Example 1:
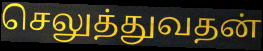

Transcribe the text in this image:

செலுத்துவதன்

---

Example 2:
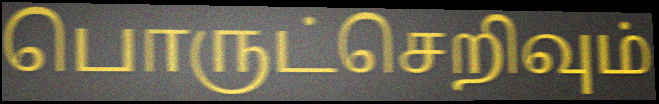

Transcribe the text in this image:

பொருட்செறிவும்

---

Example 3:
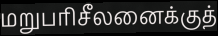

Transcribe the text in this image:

மறுபரிசீலனைக்குத்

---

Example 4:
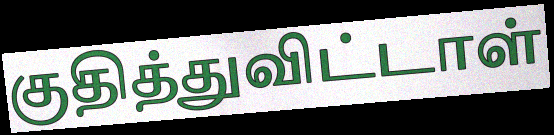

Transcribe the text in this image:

குதித்துவிட்டாள்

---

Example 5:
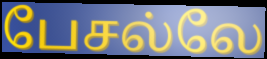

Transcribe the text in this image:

பேசல்லே